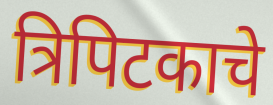
त्रिपिटकाचे